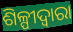
ଶିଳ୍ପୀଦ୍ୱାରା